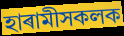
হাৰামীসকলক